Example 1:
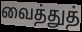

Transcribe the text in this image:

வைத்துத்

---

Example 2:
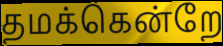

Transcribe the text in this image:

தமக்கென்றே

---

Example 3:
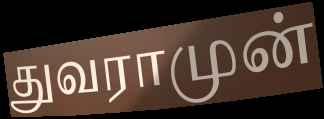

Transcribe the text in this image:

துவராமுன்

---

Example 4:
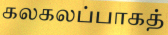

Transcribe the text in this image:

கலகலப்பாகத்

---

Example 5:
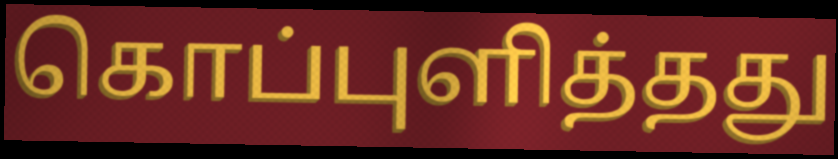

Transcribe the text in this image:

கொப்புளித்தது